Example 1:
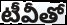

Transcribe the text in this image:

టీవీతో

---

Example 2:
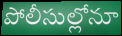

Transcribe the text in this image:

పోలీసుల్లోనూ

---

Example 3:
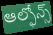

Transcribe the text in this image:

ఆల్ఫోన్స్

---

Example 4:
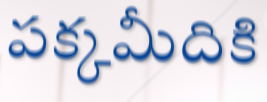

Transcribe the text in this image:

పక్కమీదికి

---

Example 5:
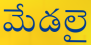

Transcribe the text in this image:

మేడలై